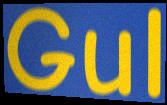
Gul